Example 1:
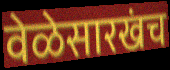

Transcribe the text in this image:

वेळेसारखंच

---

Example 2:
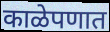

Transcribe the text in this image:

काळेपणात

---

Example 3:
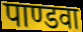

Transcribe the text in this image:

पाण्डवा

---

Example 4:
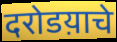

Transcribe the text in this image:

दरोडय़ाचे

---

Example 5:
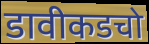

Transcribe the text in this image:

डावीकडचो